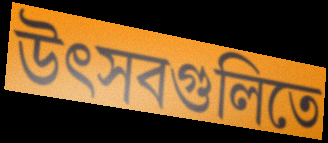
উৎসবগুলিতে